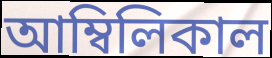
আম্বিলিকাল